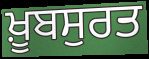
ਖ਼ੂਬਸੁਰਤ